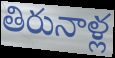
తిరునాళ్ల